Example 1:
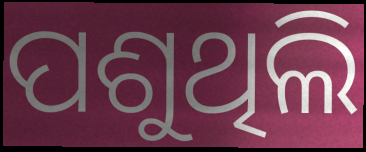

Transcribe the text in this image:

ପଶୁଥିଲି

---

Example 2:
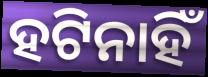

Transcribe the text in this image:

ହଟିନାହିଁ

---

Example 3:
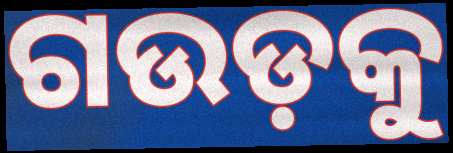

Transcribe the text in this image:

ଗଉଡ଼କୁ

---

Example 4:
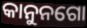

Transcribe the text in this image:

କାନୁନଗୋ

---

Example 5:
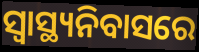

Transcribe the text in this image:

ସ୍ଵାସ୍ଥ୍ୟନିବାସରେ